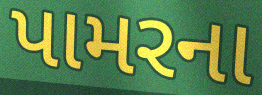
પામરના